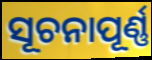
ସୂଚନାପୂର୍ଣ୍ଣ